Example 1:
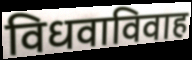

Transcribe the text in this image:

विधवाविवाह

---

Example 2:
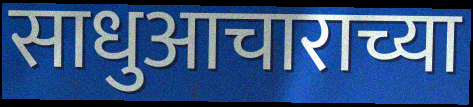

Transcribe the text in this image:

साधुआचाराच्या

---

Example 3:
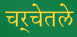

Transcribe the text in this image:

चर्चेतले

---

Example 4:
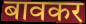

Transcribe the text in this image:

बावकर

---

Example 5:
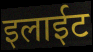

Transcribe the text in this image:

इलाईट